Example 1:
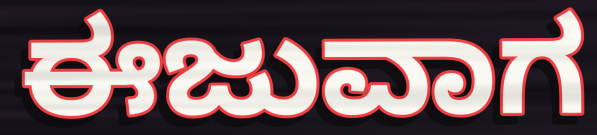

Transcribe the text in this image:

ಈಜುವಾಗ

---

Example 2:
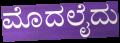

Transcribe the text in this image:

ಮೊದಲೈದು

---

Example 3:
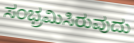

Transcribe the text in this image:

ಸಂಭ್ರಮಿಸಿರುವುದು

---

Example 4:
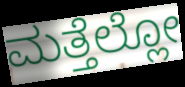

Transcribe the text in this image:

ಮತ್ತೆಲ್ಲೋ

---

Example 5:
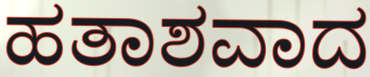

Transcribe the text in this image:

ಹತಾಶವಾದ